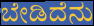
ಬೇಡಿದೆನು